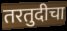
तरतुदीचा